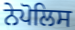
ਨੇਪੋਲਿਸ